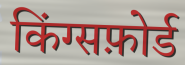
किंग्सफ़ोर्ड